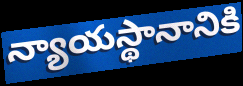
న్యాయస్థానానికి